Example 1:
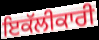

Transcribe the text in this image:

ਇਕੱਲੀਕਾਰੀ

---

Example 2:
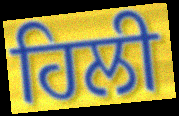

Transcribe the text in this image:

ਹਿਲੀ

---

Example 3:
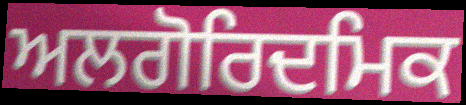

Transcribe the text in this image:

ਅਲਗੋਰਿਦਮਿਕ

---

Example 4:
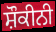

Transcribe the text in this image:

ਸ਼ੌਕੀਨੀ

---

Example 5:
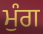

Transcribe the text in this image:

ਮੁੰਗ